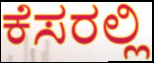
ಕೆಸರಲ್ಲಿ